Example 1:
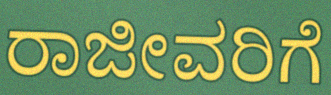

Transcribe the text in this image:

ರಾಜೀವರಿಗೆ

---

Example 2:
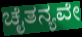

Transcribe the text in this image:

ಚೈತನ್ಯವೇ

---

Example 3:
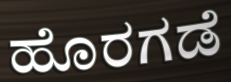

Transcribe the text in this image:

ಹೊರಗಡೆ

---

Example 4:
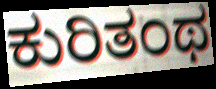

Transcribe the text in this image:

ಕುರಿತಂಥ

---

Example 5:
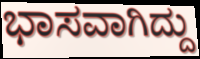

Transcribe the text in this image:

ಭಾಸವಾಗಿದ್ದು